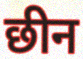
छीन